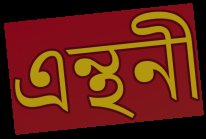
এন্থনী